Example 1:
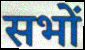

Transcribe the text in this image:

सभों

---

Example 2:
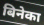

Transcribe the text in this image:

बिनेका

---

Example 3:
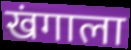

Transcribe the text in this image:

खंगाला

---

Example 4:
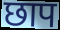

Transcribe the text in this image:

छाप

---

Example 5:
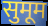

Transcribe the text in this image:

सुमूम